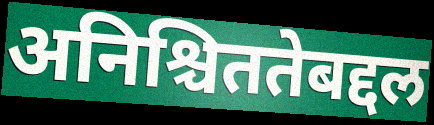
अनिश्चिततेबद्दल